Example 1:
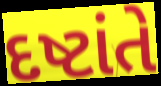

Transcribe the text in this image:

દષ્ટાંતે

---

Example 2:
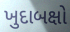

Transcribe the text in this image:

ખુદાબક્ષો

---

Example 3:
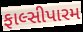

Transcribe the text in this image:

ફાલ્સીપારમ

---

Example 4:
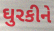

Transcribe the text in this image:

ઘુરકીને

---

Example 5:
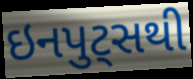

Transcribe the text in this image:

ઇનપુટ્સથી